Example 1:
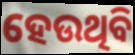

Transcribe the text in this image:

ହେଉଥିବି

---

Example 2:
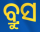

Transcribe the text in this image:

ବ୍ରୁସ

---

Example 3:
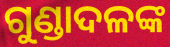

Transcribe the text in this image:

ଗୁଣ୍ଡାଦଳଙ୍କ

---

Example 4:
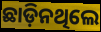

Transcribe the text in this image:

ଛାଡ଼ିନଥିଲେ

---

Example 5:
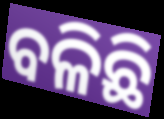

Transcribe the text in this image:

ବଳିଛି